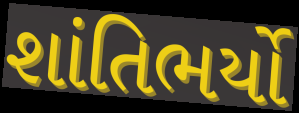
શાંતિભર્યો